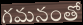
గమనంతో